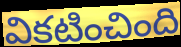
వికటించింది